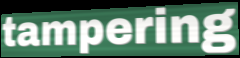
tampering